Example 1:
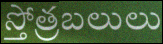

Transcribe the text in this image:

స్తోత్రబలులు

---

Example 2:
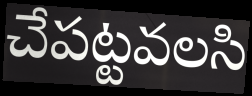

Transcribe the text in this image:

చేపట్టవలసి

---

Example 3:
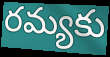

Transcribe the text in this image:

రమ్యకు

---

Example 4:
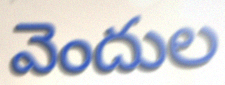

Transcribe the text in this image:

వెందుల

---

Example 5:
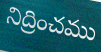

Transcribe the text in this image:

నిద్రించము